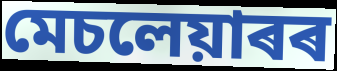
মেচলেয়াৰৰ